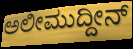
ಅಲೀಮುದ್ದೀನ್